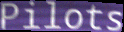
Pilots